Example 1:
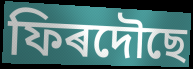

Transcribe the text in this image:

ফিৰদৌছে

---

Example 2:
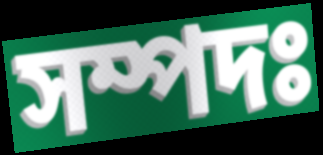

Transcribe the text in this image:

সম্পদঃ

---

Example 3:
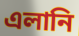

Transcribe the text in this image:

এলানি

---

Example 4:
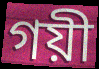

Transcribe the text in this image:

গয়ী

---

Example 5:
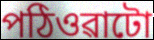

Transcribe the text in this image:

পঠিওৱাটো